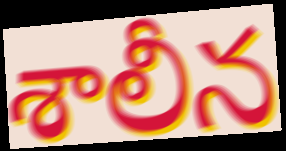
శాలీన